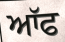
ਆੱਫ